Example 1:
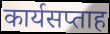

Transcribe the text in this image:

कार्यसप्ताह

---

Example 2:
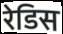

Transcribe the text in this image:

रेडिस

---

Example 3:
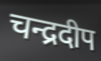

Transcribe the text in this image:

चन्द्रदीप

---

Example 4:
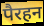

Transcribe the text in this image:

पैरहन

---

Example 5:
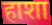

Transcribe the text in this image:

हाशा